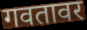
गवतावर